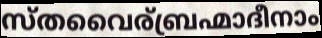
സ്തവൈര്ബ്രഹ്മാദീനാം